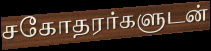
சகோதரர்களுடன்